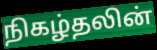
நிகழ்தலின்